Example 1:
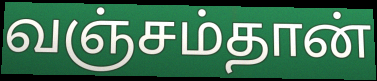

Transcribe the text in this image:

வஞ்சம்தான்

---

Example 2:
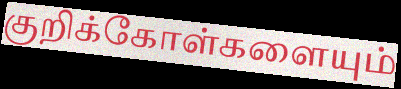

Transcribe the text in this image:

குறிக்கோள்களையும்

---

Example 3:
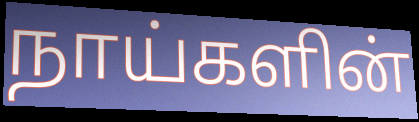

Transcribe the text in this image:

நாய்களின்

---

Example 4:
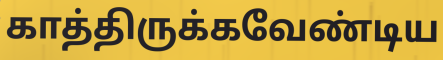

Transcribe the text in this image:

காத்திருக்கவேண்டிய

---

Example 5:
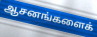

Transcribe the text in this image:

ஆசனங்களைக்